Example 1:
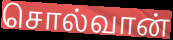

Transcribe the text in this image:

சொல்வான்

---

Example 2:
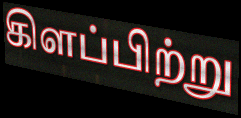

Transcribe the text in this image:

கிளப்பிற்று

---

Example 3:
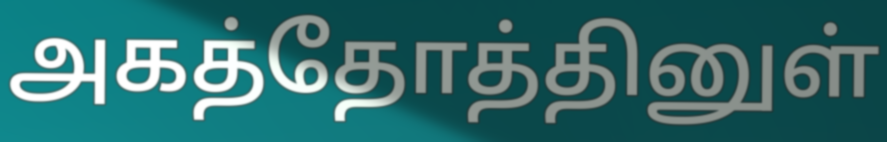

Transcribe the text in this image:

அகத்தோத்தினுள்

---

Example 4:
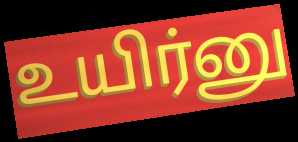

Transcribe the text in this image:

உயிர்னு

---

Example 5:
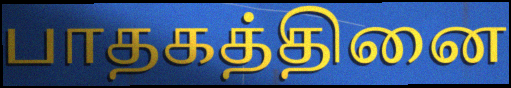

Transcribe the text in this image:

பாதகத்தினை